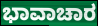
ಭಾವಾಚಾರ